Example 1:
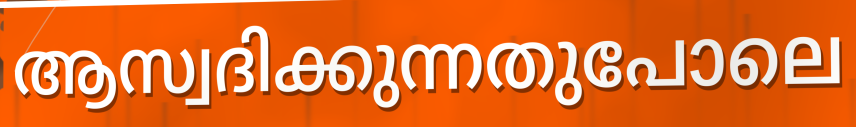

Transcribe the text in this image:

ആസ്വദിക്കുന്നതുപോലെ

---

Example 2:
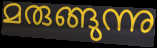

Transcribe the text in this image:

മരുങ്ങുന്നു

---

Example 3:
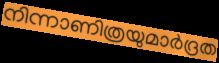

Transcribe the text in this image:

നിന്നാണിത്രയുമാർദ്രത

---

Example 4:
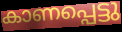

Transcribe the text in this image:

കാണപ്പെട്ടു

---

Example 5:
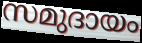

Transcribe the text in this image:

സമുദായം